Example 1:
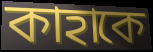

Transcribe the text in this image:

কাহাকে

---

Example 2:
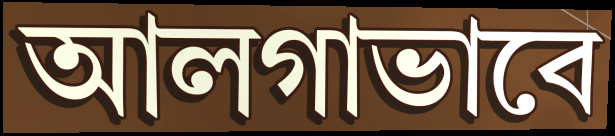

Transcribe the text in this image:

আলগাভাবে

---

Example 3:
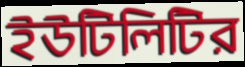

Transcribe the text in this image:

ইউটিলিটির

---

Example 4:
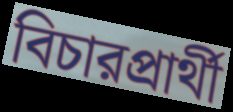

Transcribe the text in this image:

বিচারপ্রার্থী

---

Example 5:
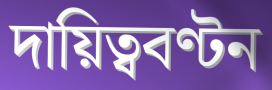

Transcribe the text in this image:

দায়িত্ববণ্টন